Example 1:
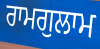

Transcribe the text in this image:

ਰਾਮਗੁਲਾਮ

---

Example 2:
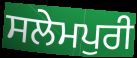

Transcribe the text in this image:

ਸਲੇਮਪੁਰੀ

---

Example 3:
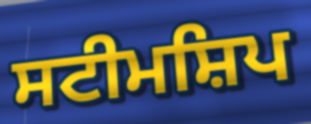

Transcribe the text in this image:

ਸਟੀਮਸ਼ਿਪ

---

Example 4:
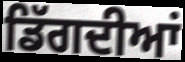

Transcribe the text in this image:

ਡਿੱਗਦੀਆਂ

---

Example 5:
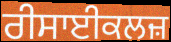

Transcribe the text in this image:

ਰੀਸਾਈਕਲਜ਼